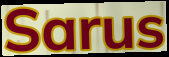
Sarus